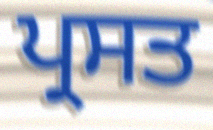
ਪ੍ਰਸਤ